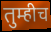
तुम्हीच